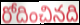
రోదించినది